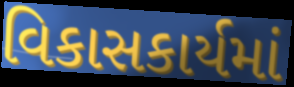
વિકાસકાર્યમાં